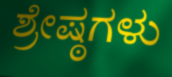
ಶ್ರೇಷ್ಠಗಳು